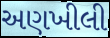
અણખીલી